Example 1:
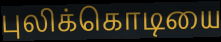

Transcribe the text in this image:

புலிக்கொடியை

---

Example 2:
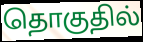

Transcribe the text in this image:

தொகுதில்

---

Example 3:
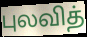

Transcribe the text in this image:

புலவித்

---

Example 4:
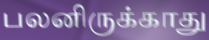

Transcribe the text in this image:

பலனிருக்காது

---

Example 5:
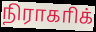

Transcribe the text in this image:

நிராகரிக்